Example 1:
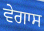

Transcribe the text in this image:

ਵੇਗਾਸ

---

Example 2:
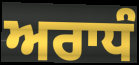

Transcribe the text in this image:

ਅਰਾਧੰ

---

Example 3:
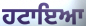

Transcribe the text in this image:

ਹਟਾਇਆ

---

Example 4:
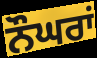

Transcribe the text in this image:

ਨੌਘਰਾਂ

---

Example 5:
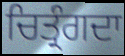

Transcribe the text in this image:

ਚਿਤ੍ਰੰਗਦਾ